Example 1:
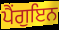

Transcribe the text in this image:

ਪੈਂਗੁਇਨ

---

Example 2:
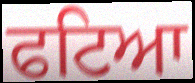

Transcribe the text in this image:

ਫਟਿਆ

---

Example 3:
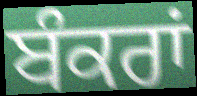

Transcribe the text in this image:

ਬੰਕਰਾਂ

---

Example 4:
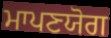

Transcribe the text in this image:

ਮਾਪਣਯੋਗ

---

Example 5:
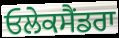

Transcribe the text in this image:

ਓਲੇਕਸੈਂਡਰਾ